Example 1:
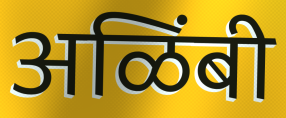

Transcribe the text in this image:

अळिंबी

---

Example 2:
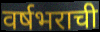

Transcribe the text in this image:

वर्षभराची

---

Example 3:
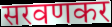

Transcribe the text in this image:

सरवणकर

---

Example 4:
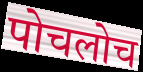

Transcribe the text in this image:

पोचलोच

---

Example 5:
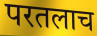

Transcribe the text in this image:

परतलाच